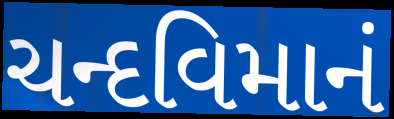
ચન્દવિમાનં